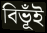
বিভূঁই